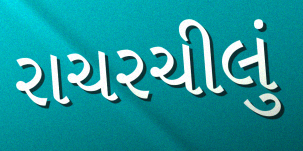
રાચરચીલું